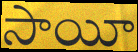
సాయీ